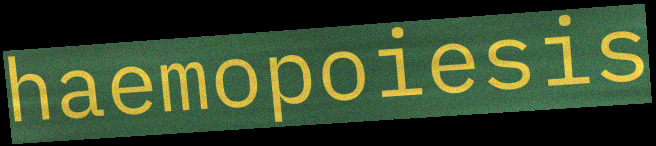
haemopoiesis